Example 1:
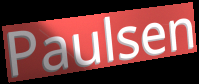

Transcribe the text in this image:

Paulsen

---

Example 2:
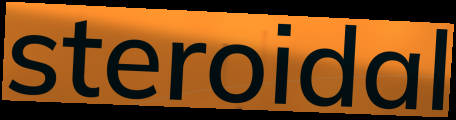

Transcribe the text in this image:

steroidal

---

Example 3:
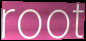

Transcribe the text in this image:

root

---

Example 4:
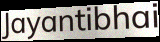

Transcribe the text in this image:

Jayantibhai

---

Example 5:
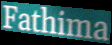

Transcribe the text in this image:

Fathima